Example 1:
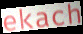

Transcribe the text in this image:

ekach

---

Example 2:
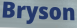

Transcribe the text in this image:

Bryson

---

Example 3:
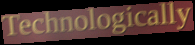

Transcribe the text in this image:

Technologically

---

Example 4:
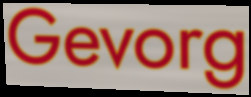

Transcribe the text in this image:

Gevorg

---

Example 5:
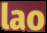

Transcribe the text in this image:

lao